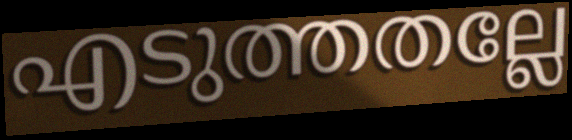
എടുത്തതല്ലേ